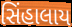
સિંહાલાય